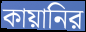
কায়ানির